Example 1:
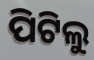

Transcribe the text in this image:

ପିଟିଲୁ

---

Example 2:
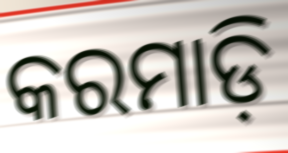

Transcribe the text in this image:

କରମାଡ଼ି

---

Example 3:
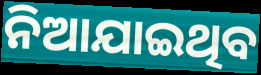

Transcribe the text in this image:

ନିଆଯାଇଥିବ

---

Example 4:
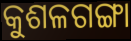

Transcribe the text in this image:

କୁଶଳଗଙ୍ଗା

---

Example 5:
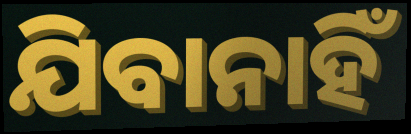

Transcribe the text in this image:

ଯିବାନାହିଁ